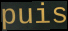
puis